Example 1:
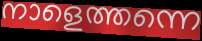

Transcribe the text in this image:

നാളെത്തന്നെ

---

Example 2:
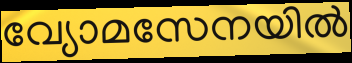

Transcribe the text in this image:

വ്യോമസേനയിൽ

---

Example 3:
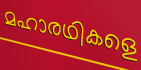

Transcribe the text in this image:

മഹാരഥികളെ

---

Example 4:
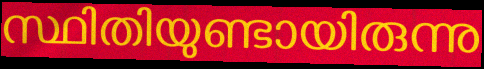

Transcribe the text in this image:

സ്ഥിതിയുണ്ടായിരുന്നു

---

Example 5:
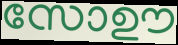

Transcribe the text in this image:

സോഊ